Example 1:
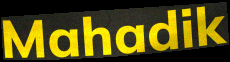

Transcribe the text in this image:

Mahadik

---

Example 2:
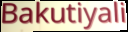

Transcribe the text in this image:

Bakutiyali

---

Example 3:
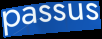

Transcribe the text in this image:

passus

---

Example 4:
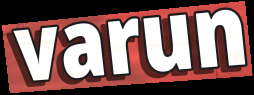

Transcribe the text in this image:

varun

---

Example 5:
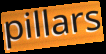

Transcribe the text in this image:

pillars